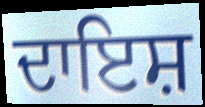
ਦਾਇਸ਼